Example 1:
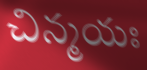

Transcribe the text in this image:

చిన్మయః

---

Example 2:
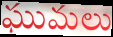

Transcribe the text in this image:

ఘుమలు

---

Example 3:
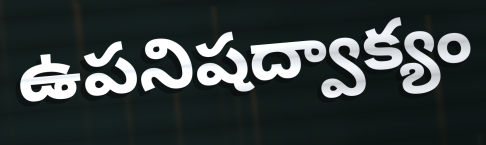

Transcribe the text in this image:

ఉపనిషద్వాక్యం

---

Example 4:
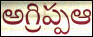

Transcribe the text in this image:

అగ్రిప్పఆ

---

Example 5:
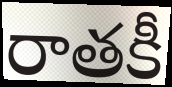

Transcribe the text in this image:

రాతకీ